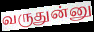
வருதுன்னு